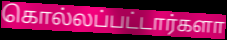
கொல்லப்பட்டார்களா